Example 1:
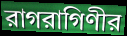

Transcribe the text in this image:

রাগরাগিণীর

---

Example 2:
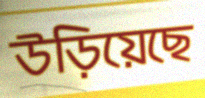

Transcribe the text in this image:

উড়িয়েছে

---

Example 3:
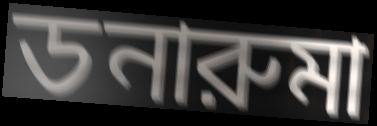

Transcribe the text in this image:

ডনারুমা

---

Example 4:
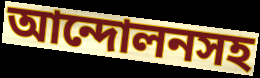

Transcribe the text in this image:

আন্দোলনসহ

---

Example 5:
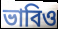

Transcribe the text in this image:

ভাবিও